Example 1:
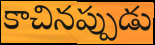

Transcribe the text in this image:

కాచినప్పుడు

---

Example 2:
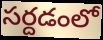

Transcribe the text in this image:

సర్దడంలో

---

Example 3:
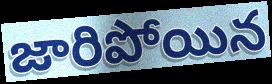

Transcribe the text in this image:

జారిపోయిన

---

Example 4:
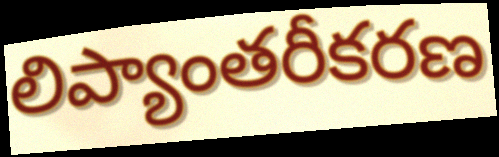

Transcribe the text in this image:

లిప్యాంతరీకరణ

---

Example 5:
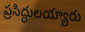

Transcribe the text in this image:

ప్రసిద్ధులయ్యారు